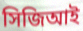
সিজিআই